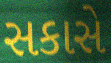
સકાસે